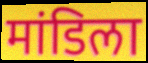
मांडिला